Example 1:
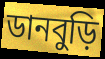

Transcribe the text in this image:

ডানবুড়ি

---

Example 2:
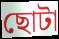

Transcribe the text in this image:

ছোটা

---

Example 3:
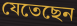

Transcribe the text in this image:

যেতেছেন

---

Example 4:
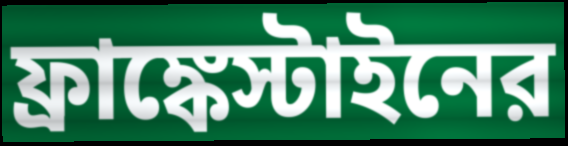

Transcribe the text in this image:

ফ্রাঙ্কেস্টাইনের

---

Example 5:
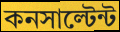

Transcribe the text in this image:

কনসাল্টেন্ট